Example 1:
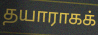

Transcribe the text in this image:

தயாராகக்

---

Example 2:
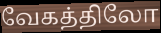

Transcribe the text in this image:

வேகத்திலோ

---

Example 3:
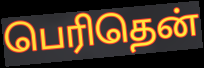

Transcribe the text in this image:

பெரிதென்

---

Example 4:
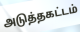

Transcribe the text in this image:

அடுத்தகட்டம்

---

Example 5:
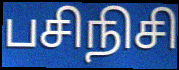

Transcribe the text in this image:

பசிநிசி